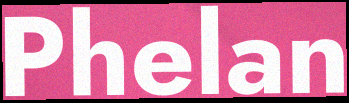
Phelan